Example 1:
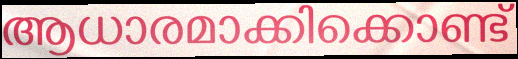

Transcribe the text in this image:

ആധാരമാക്കിക്കൊണ്ട്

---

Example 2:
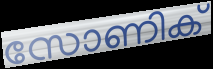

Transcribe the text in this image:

സോണിക്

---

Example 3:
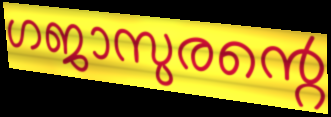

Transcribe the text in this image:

ഗജാസുരന്റെ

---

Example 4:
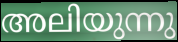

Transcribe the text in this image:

അലിയുന്നു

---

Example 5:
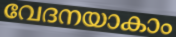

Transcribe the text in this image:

വേദനയാകാം